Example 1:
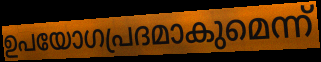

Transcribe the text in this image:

ഉപയോഗപ്രദമാകുമെന്ന്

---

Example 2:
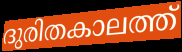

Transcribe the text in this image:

ദുരിതകാലത്ത്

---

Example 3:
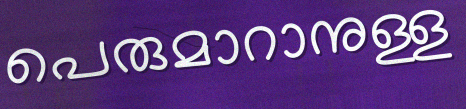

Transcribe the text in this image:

പെരുമാറാനുള്ള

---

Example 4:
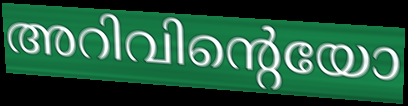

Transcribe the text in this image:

അറിവിന്റെയോ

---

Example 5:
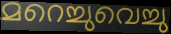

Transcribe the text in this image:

മറെച്ചുവെച്ചു